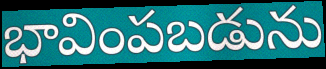
భావింపబడును